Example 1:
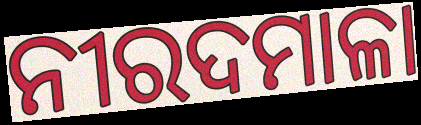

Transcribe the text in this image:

ନୀରଦମାଳା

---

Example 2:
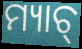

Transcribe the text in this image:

ମ୍ୟାଚ୍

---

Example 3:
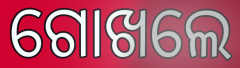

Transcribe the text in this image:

ଗୋଖଲେ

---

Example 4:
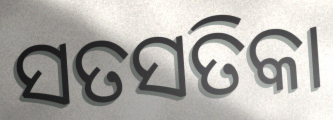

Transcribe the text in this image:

ସତସତିକା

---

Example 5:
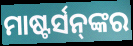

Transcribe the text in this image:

ମାଷ୍ଟର୍ସନ୍‌ଙ୍କର